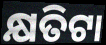
କ୍ଷତିଟା